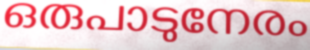
ഒരുപാടുനേരം